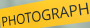
PHOTOGRAPH